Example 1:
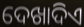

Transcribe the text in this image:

ଦେଖାଦିଏ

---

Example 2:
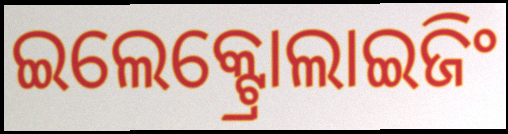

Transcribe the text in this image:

ଇଲେକ୍ଟ୍ରୋଲାଇଜିଂ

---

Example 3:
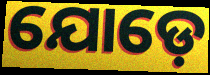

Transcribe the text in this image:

ଯୋଡ଼େ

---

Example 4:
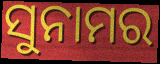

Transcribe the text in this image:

ସୁନାମର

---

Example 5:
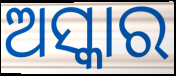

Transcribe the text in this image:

ଅସ୍କାର